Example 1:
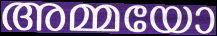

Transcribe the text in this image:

അമ്മയോ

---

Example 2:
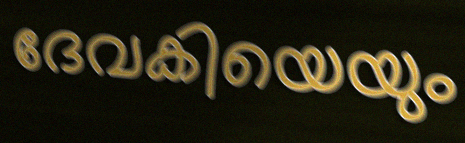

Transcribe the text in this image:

ദേവകിയെയും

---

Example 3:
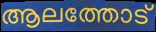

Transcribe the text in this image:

ആലത്തോട്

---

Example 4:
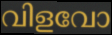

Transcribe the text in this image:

വിളവോ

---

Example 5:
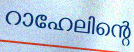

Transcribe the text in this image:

റാഹേലിന്റെ